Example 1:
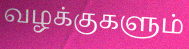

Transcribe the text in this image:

வழக்குகளும்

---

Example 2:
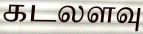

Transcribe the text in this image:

கடலளவு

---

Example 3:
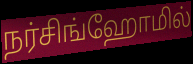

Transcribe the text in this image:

நர்சிங்ஹோமில்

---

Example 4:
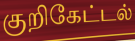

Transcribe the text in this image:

குறிகேட்டல்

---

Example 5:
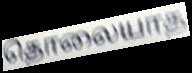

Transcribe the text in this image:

தொலையாத